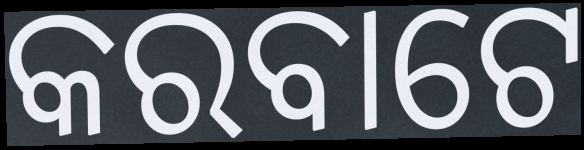
କରବାଟେ